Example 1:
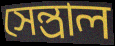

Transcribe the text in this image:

সেন্ত্রাল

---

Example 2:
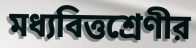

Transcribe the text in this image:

মধ্যবিত্তশ্রেণীর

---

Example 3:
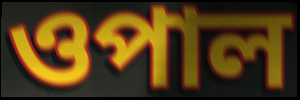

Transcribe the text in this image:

ওপাল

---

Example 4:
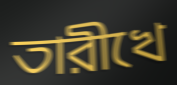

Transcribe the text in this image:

তারীখে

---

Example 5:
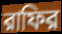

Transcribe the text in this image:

রাফির